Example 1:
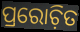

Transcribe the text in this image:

ପ୍ରରୋଚ଼ିତ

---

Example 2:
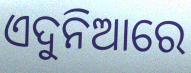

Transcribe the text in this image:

ଏଦୁନିଆରେ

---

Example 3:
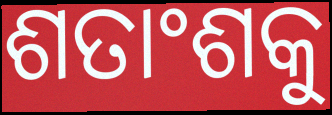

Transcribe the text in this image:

ଶତାଂଶକୁ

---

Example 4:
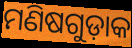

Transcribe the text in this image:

ମଣିଷଗୁଡ଼ାକ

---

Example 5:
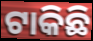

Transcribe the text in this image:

ଟାକିଛି